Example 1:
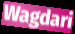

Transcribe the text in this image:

Wagdari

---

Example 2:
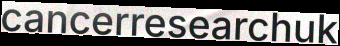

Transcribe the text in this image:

cancerresearchuk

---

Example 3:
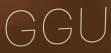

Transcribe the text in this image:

GGU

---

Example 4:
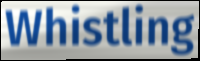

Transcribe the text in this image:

Whistling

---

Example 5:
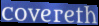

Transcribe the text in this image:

covereth